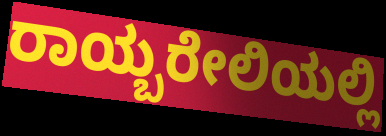
ರಾಯ್ಬರೇಲಿಯಲ್ಲಿ